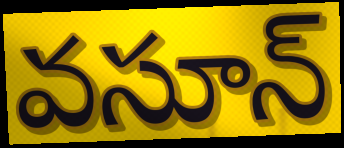
వసూన్